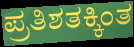
ಪ್ರತಿಶತಕ್ಕಿಂತ